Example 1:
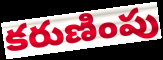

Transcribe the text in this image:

కరుణింపు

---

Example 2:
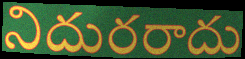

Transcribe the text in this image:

నిదురరాదు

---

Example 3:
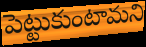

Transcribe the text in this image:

పెట్టుకుంటామని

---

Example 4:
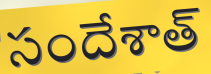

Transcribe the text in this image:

సందేశాత్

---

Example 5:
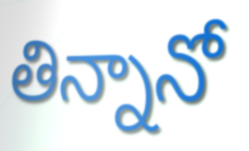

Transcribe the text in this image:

తిన్నానో